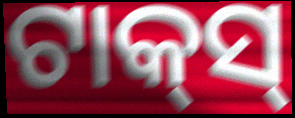
ଟାକ୍‍ସ୍